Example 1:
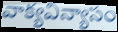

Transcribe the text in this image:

వాక్యవిన్యాసం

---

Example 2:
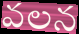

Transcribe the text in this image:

వలన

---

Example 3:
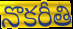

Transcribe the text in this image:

నొకరీతి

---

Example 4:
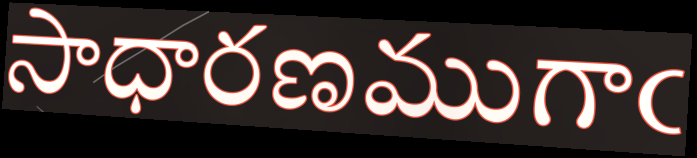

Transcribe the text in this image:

సాధారణముగాఁ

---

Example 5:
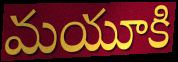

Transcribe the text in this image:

మయూకి